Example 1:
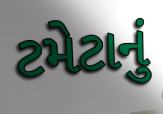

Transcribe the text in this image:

ટમેટાનું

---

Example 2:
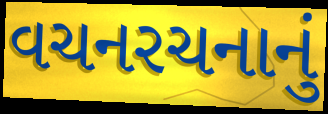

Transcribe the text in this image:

વચનરચનાનું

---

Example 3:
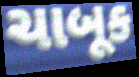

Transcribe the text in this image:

ચાબૂક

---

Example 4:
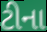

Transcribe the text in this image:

ટીના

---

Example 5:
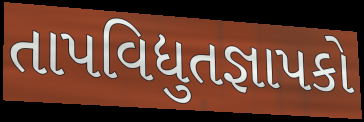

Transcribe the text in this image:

તાપવિદ્યુતજ્ઞાપકો